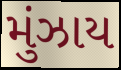
મુંઝાય